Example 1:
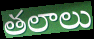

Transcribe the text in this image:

తలాలు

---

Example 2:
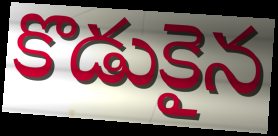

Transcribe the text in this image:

కొడుకైన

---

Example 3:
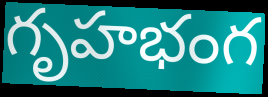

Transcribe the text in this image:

గృహభంగ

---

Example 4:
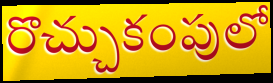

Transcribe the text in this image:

రొచ్చుకంపులో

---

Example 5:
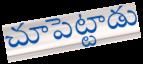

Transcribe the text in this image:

చూపెట్టాడు